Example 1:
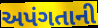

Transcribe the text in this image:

અપંગતાની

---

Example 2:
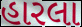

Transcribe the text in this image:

હારલા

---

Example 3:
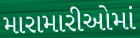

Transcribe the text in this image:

મારામારીઓમાં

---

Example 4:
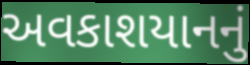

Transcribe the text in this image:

અવકાશયાનનું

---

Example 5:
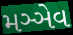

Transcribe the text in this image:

મઞ્ઞેવ